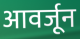
आवर्जून